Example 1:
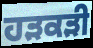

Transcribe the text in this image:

ਹੜਕੜੀ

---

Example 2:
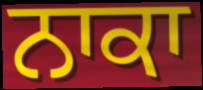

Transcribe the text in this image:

ਨਾਕਾ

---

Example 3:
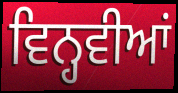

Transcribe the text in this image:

ਵਿਨ੍ਹਵੀਆਂ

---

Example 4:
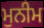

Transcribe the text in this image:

ਮੁਨੀਮ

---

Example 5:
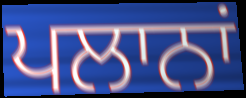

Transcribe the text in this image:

ਪਲਾਨਾਂ